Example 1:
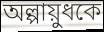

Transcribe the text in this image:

অল্পায়ুধকে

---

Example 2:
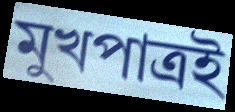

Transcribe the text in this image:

মুখপাত্রই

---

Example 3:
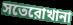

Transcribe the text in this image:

সতেরোখানা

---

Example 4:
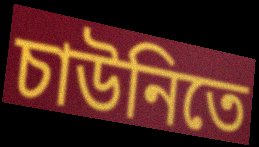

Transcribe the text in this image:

চাউনিতে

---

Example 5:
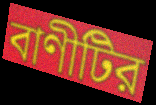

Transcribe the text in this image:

বাণীটির